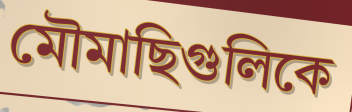
মৌমাছিগুলিকে